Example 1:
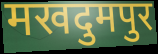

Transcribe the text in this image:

मखदुमपुर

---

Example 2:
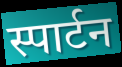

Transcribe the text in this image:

स्पार्टन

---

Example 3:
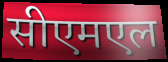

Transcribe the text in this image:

सीएमएल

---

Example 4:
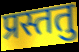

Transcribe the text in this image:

प्रस्ततु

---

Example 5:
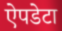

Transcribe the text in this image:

ऐपडेटा